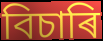
বিচাৰি